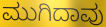
ಮುಗಿದಾವು